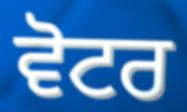
ਵੋਟਰ